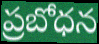
ప్రబోధన